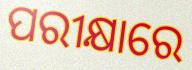
ପରୀକ୍ଷାରେ